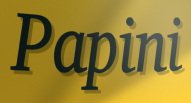
Papini